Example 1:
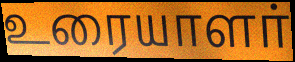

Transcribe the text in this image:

உரையாளர்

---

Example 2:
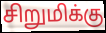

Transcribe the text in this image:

சிறுமிக்கு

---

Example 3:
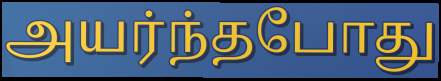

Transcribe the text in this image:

அயர்ந்தபோது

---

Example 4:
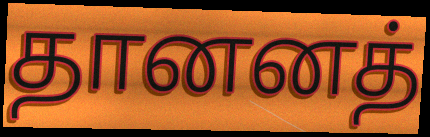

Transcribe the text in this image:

தானனத்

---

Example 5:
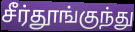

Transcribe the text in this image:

சீர்தூங்குந்து